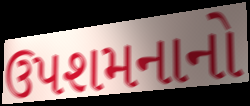
ઉપશમનાનો